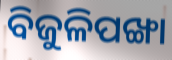
ବିଜୁଳିପଙ୍ଖା